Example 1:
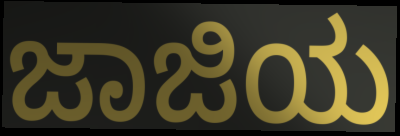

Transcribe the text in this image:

ಜಾಜಿಯ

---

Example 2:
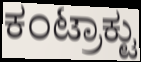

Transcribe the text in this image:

ಕಂಟ್ರಾಕ್ಟು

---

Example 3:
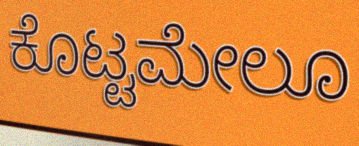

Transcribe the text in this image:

ಕೊಟ್ಟಮೇಲೂ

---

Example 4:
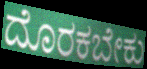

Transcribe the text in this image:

ದೊರಕಬೇಕು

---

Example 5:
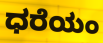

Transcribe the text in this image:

ಧರೆಯಂ